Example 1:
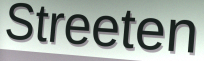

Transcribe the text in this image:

Streeten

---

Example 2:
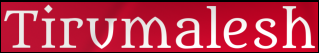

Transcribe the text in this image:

Tirumalesh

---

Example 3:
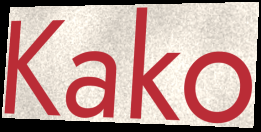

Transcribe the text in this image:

Kako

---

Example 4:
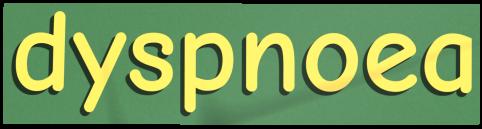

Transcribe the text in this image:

dyspnoea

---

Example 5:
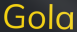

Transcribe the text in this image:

Gola